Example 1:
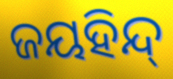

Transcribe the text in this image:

ଜୟହିନ୍ଦ୍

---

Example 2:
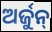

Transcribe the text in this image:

ଅର୍ଜୁନ୍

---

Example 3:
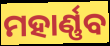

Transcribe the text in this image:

ମହାର୍ଣ୍ଣବ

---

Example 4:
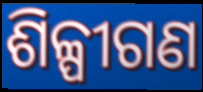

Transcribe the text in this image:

ଶିଳ୍ପୀଗଣ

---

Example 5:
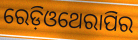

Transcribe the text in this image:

ରେଡ଼ିଓଥେରାପିର